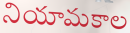
నియామకాల